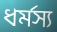
ধৰ্মস্য